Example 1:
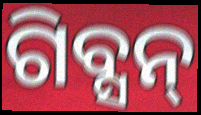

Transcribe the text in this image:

ଗିବ୍ସନ୍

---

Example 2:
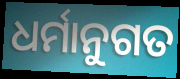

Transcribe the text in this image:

ଧର୍ମାନୁଗତ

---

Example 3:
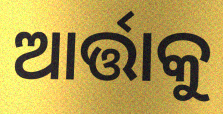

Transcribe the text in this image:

ଆର୍ତ୍ତାକୁ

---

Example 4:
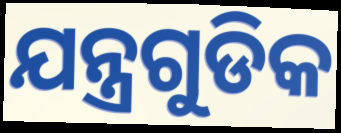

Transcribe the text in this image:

ଯନ୍ତ୍ରଗୁଡିକ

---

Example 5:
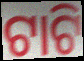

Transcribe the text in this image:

ଟାଟି